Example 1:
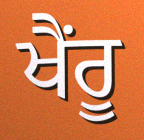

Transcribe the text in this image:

ਖੈਂਰੂ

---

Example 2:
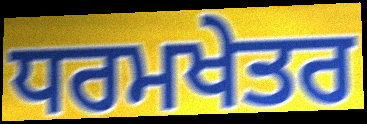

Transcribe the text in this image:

ਧਰਮਖੇਤਰ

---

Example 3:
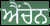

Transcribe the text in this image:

ਐਂਚੇਨ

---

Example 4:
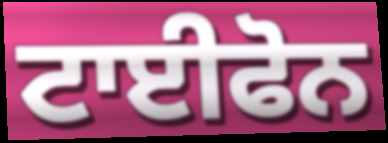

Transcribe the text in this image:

ਟਾਈਫੋਨ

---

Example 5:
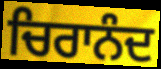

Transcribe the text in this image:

ਚਿਰਾਨੰਦ